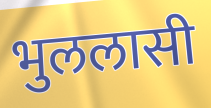
भुललासी